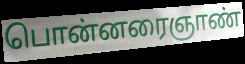
பொன்னரைஞாண்